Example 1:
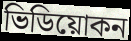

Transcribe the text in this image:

ভিডিয়োকন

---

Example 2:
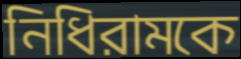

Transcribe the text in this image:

নিধিরামকে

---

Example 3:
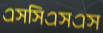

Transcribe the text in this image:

এসসিএসএস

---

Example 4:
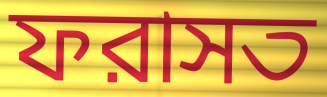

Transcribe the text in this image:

ফরাসত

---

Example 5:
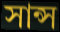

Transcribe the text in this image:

সান্স